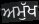
ਅਮੁੱਖ